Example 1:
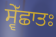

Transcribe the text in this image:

ਸ੍ਵੇੱਛਾਤਃ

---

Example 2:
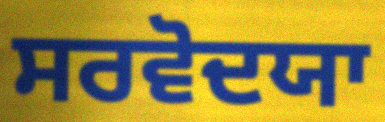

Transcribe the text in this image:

ਸਰਵੋਦਯਾ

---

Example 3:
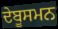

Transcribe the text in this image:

ਦੇਬੂਸਮਨ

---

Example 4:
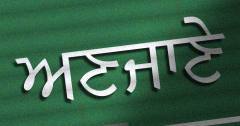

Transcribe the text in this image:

ਅਣਜਾਣੇ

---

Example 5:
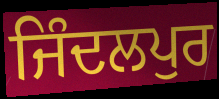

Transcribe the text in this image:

ਜਿੰਦਲਪੁਰ